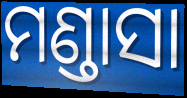
ମଣ୍ଡାସା